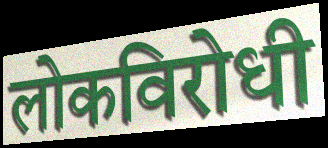
लोकविरोधी